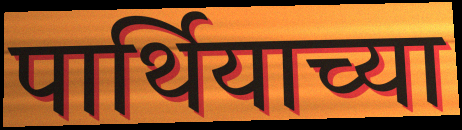
पार्थियाच्या